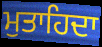
ਮੁਤਾਹਿਦਾ